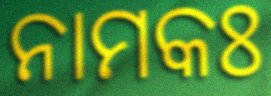
ନାମକଃ